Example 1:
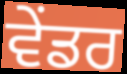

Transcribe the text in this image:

ਵੇਂਡਰ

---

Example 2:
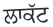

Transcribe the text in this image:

ਲਾਕੱਟ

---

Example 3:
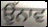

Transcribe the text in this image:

ਉੱਨਾਵ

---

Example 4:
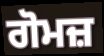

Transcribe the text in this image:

ਗੋਮਜ਼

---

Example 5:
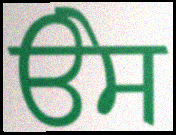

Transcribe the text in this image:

ੳੇਸ